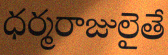
ధర్మరాజులైతే